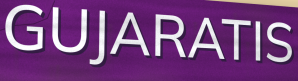
GUJARATIS